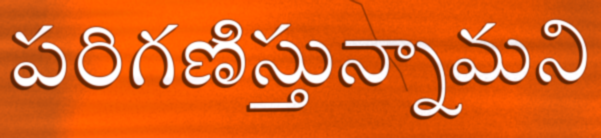
పరిగణిస్తున్నామని